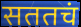
सततचं